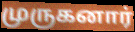
முருகனார்